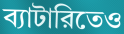
ব্যাটারিতেও